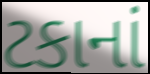
ટકાનાં